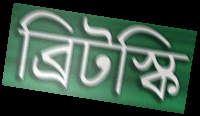
ব্রিটস্কি